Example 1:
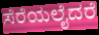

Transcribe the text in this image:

ಸೆರೆಯಲೈದರೆ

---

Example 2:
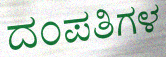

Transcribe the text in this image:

ದಂಪತಿಗಳ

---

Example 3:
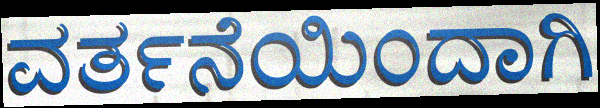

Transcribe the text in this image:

ವರ್ತನೆಯಿಂದಾಗಿ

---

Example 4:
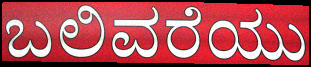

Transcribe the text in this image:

ಬಲಿವರೆಯು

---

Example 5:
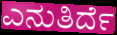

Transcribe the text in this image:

ಎನುತಿರ್ದೆ